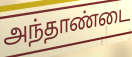
அந்தாண்டை